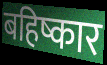
बहिष्कार